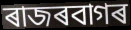
ৰাজৰবাগৰ